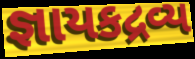
જ્ઞાયકદ્રવ્ય